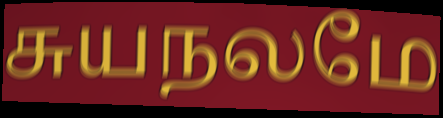
சுயநலமே